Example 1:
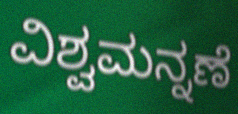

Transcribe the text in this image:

ವಿಶ್ವಮನ್ನಣೆ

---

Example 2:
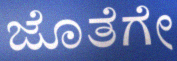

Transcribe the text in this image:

ಜೊತೆಗೇ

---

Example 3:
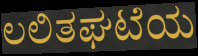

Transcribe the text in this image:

ಲಲಿತಘಟೆಯ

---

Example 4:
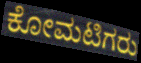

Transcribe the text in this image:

ಕೋಮಟಿಗರು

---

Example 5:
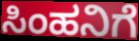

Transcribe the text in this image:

ಸಿಂಹನಿಗೆ